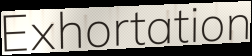
Exhortation